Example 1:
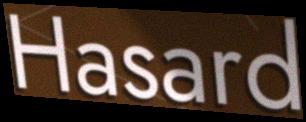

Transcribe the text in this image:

Hasard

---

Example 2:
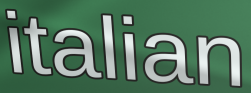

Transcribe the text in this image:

italian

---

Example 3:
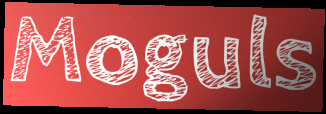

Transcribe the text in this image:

Moguls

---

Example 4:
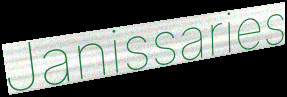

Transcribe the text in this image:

Janissaries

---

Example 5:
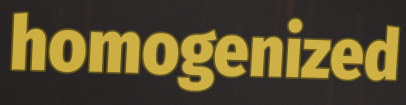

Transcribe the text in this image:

homogenized